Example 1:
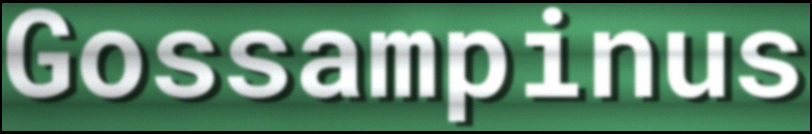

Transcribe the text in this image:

Gossampinus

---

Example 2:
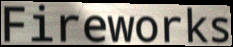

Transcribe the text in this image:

Fireworks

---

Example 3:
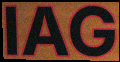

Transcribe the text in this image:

IAG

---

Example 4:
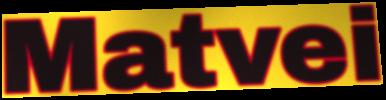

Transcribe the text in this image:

Matvei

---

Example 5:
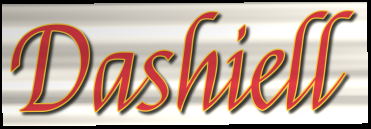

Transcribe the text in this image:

Dashiell